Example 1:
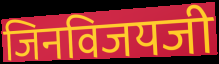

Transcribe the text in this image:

जिनविजयजी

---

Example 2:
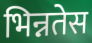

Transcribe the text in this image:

भिन्नतेस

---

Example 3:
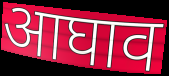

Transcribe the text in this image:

आघाव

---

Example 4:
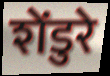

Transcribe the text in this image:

शेंडुरे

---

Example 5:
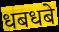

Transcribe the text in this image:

धबधबे